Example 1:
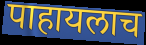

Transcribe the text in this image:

पाहायलाच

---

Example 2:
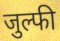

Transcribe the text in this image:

जुल्फी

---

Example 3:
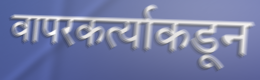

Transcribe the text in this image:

वापरकर्त्याकडून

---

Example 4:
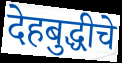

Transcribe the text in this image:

देहबुद्धीचे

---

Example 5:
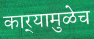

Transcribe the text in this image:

कार्यामुळेच